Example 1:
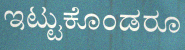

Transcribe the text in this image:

ಇಟ್ಟುಕೊಂಡರೂ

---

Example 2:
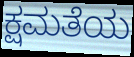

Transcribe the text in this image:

ಕ್ಷಮತೆಯ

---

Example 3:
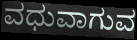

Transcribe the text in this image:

ವಧುವಾಗುವ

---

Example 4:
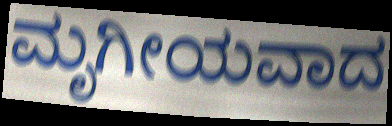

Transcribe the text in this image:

ಮೃಗೀಯವಾದ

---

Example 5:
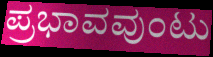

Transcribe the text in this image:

ಪ್ರಭಾವವುಂಟು